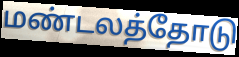
மண்டலத்தோடு